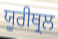
ਯੂਰੀਥ੍ਰਲ